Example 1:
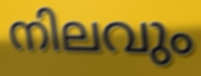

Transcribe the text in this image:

നിലവും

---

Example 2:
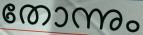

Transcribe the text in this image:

തോന്നും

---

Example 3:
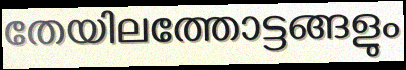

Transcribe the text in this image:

തേയിലത്തോട്ടങ്ങളും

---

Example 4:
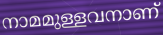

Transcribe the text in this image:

നാമമുള്ളവനാണ്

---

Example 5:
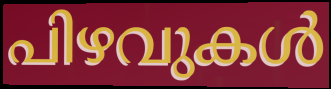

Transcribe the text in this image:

പിഴവുകൾ